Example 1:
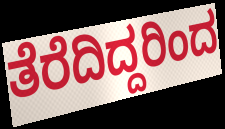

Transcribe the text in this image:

ತೆರೆದಿದ್ದರಿಂದ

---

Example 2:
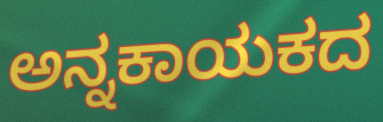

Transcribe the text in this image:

ಅನ್ನಕಾಯಕದ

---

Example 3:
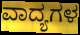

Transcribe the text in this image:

ವಾದ್ಯಗಳ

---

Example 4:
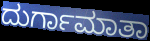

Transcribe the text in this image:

ದುರ್ಗಾಮಾತಾ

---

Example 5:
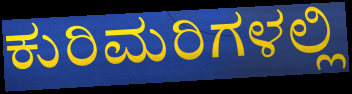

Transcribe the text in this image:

ಕುರಿಮರಿಗಳಲ್ಲಿ